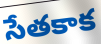
సేతకాక